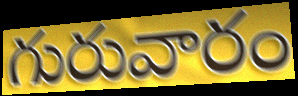
గురువారం